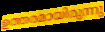
ഉത്തരമായിരുന്നു